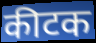
कीटक